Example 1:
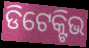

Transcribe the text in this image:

ଡିଟେକ୍ଟିଭ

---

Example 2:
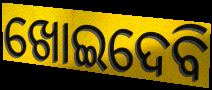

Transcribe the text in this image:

ଖୋଇଦେବି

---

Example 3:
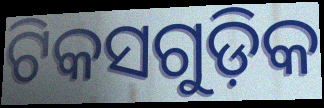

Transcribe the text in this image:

ଟିକସଗୁଡ଼ିକ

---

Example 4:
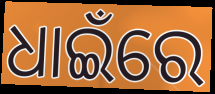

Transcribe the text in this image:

ଧାଇଁରେ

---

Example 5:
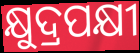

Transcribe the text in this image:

କ୍ଷୁଦ୍ରପକ୍ଷୀ